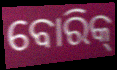
ବୋରିକ୍